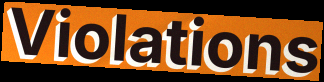
Violations